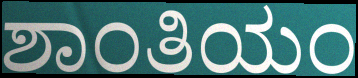
ಶಾಂತಿಯಂ